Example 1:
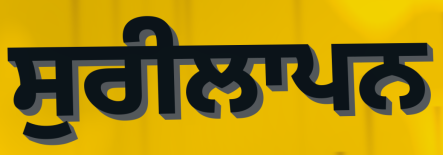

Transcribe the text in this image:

ਸੁਰੀਲਾਪਨ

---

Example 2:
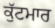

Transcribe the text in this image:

ਕੁੱਟਮਾਰ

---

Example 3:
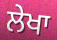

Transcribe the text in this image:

ਲੇਖਾ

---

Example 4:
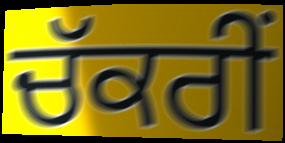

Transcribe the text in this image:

ਚੱਕਰੀਂ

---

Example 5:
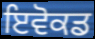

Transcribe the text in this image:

ਇਵੋਕਡ